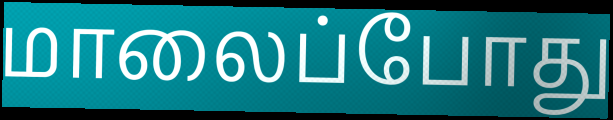
மாலைப்போது